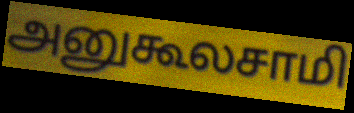
அனுகூலசாமி